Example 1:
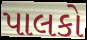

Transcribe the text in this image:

પાલકો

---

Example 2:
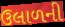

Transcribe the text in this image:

ઉલાળની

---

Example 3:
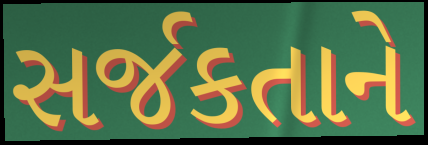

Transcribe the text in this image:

સર્જકતાને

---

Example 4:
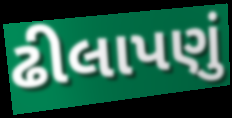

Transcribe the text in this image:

ઢીલાપણું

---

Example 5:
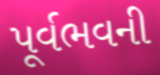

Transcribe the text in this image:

પૂર્વભવની